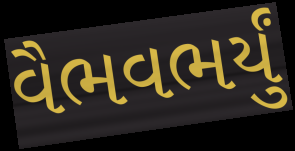
વૈભવભર્યું